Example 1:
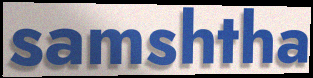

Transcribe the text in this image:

samshtha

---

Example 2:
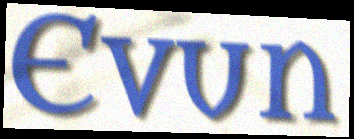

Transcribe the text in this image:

Evun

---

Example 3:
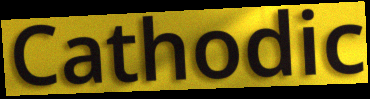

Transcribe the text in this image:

Cathodic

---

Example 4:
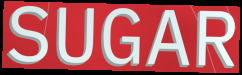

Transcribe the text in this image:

SUGAR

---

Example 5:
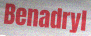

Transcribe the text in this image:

Benadryl